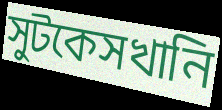
সুটকেসখানি